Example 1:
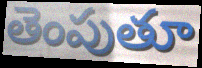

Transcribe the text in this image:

తెంపుతూ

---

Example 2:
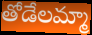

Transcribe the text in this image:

తోడేలమ్మా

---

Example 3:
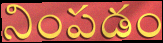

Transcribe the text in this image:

నింపడం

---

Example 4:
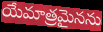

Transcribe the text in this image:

యేమాత్రమైనను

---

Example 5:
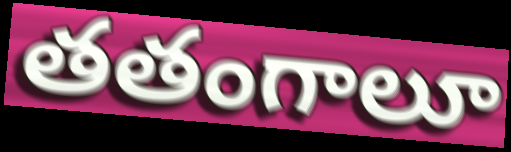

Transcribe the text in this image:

తతంగాలూ